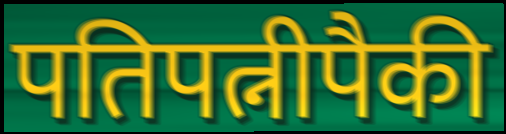
पतिपत्नीपैकी